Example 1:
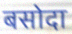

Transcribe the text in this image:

बसोदा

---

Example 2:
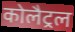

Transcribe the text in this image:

कोलैट्रल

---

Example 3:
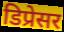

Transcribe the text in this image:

डिप्रेसर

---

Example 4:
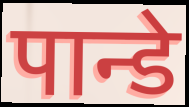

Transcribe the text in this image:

पान्डे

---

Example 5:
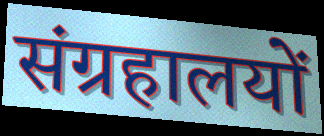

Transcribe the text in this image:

संग्रहालयों